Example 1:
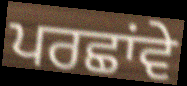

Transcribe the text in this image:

ਪਰਛਾਂਵੇ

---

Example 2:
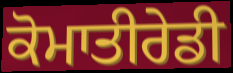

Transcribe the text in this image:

ਕੋਮਾਤੀਰੇਡੀ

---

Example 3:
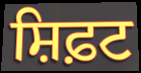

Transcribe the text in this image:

ਸ਼ਿਫ਼ਟ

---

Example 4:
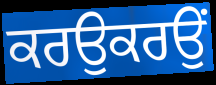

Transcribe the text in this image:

ਕਰਉਕਰਉਂ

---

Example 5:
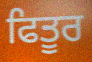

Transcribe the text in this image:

ਫਿਤੂਰ